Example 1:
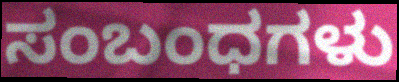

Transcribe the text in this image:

ಸಂಬಂಧಗಳು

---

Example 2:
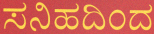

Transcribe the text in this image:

ಸನಿಹದಿಂದ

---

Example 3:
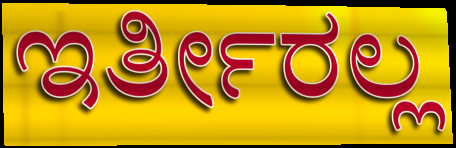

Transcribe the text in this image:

ಇರ್ತೀರಲ್ಲ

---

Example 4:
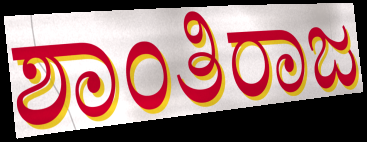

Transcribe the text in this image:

ಶಾಂತಿರಾಜ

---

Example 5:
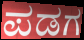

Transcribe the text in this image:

ಪಡಗ